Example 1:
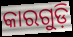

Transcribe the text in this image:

କାରଗୁଡ଼ି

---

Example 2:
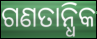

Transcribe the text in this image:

ଗଣତାନ୍ଧିକ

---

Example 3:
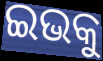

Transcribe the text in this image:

ଇଭକୁ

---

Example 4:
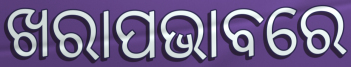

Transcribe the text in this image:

ଖରାପଭାବରେ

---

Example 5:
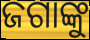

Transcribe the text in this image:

ଜଗାଙ୍କୁ